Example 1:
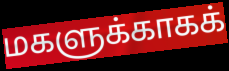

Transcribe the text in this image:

மகளுக்காகக்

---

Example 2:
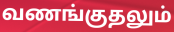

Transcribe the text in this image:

வணங்குதலும்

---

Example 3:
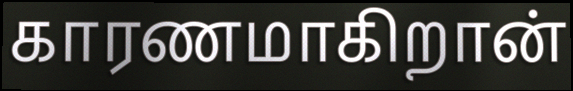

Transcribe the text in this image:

காரணமாகிறான்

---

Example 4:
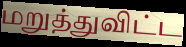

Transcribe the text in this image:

மறுத்துவிட்ட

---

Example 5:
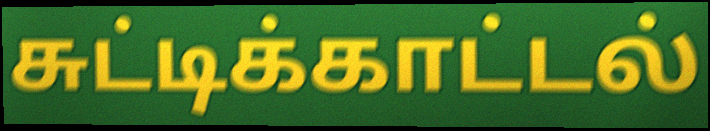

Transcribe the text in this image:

சுட்டிக்காட்டல்